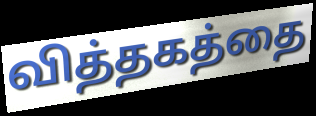
வித்தகத்தை